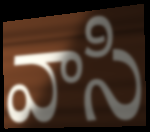
వాసి